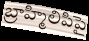
బ్రాహ్మిలిపిపై